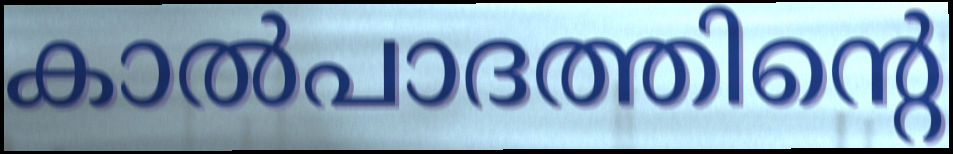
കാൽപാദത്തിന്റെ